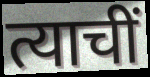
त्याचीं